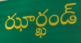
ఝార్ఖండ్